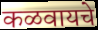
कळवायचे